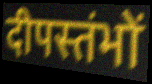
दीपस्तंभों